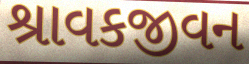
શ્રાવકજીવન